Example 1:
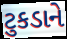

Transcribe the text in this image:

ટુકડાને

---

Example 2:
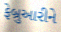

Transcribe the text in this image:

ફેબ્રુઆરીને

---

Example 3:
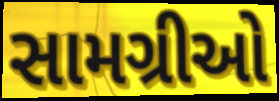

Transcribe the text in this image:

સામગ્રીઓ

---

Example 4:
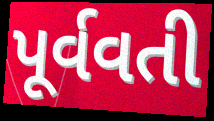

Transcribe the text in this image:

પૂર્વવતી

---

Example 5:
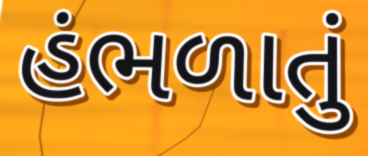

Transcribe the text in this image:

હંભળાતું